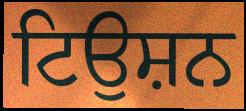
ਟਿਉਸ਼ਨ